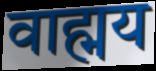
वाह्मय